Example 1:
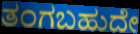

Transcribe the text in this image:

ತಂಗಬಹುದೇ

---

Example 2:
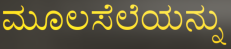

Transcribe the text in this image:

ಮೂಲಸೆಲೆಯನ್ನು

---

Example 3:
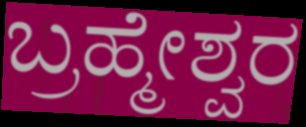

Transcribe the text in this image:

ಬ್ರಹ್ಮೇಶ್ವರ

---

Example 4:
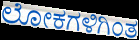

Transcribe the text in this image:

ಲೋಕಗಳಿಗಿಂತ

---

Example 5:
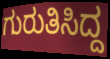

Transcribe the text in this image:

ಗುರುತಿಸಿದ್ದ